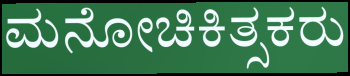
ಮನೋಚಿಕಿತ್ಸಕರು